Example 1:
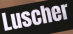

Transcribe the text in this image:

Luscher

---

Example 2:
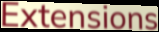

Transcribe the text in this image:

Extensions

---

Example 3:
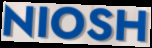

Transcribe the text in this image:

NIOSH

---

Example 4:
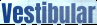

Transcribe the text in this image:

Vestibular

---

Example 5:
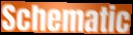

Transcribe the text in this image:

Schematic